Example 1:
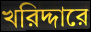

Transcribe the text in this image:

খরিদ্দারে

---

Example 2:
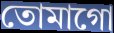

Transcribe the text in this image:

তোমাগো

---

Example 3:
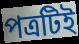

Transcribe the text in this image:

পত্রটিই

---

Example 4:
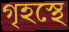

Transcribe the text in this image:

গৃহস্থে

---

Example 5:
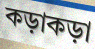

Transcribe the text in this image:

কড়াকড়া